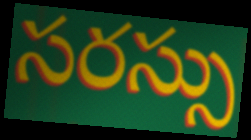
సరస్సు